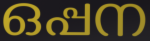
ഒപ്പന